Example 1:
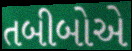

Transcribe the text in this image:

તબીબોએ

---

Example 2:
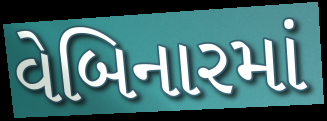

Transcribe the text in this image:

વેબિનારમાં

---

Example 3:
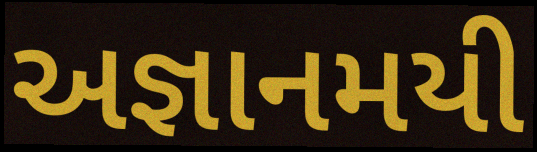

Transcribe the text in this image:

અજ્ઞાનમયી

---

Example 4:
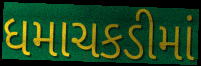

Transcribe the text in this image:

ધમાચકડીમાં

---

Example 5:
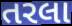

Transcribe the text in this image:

તરલા